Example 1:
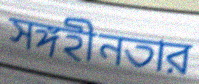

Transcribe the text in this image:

সঙ্গহীনতার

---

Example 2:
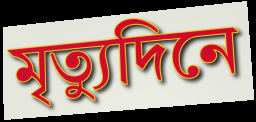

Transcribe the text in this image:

মৃত্যুদিনে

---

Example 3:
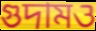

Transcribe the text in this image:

গুদামও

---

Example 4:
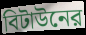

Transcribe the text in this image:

বিটাউনের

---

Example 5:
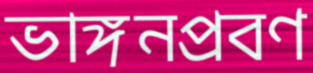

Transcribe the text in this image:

ভাঙ্গনপ্রবণ